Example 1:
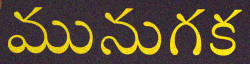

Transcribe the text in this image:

మునుగక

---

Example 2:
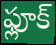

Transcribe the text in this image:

ఫ్లూక్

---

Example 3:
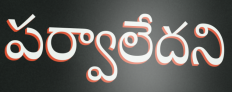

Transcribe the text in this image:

పర్వాలేదని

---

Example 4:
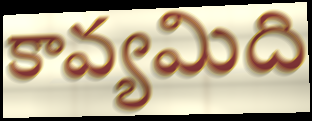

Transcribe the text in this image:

కావ్యమిది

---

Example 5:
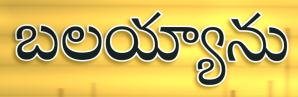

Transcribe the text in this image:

బలయ్యాను